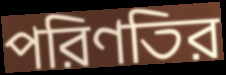
পরিণতির